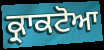
ਕ੍ਰਾਕਟੋਆ